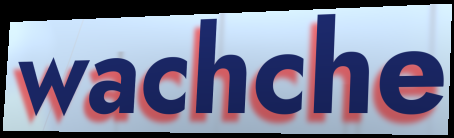
wachche